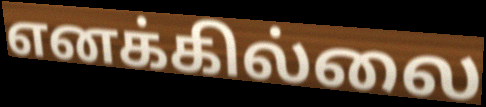
எனக்கில்லை